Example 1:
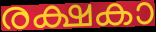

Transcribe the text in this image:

രക്ഷകാ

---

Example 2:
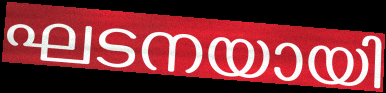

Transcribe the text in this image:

ഘടനയായി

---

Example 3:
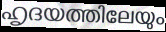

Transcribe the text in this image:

ഹൃദയത്തിലേയും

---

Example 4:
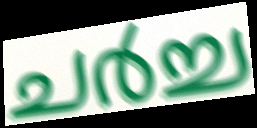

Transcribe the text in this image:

ചർച്ച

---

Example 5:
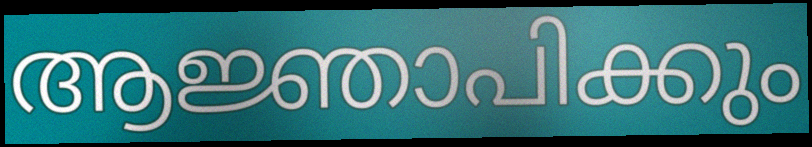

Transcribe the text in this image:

ആജ്ഞാപിക്കും